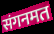
संगनमत